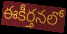
ఈకీర్తనలో